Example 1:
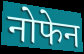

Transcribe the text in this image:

नोफेन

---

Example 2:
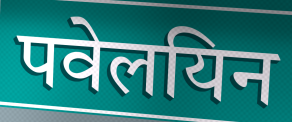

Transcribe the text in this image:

पवेलयिन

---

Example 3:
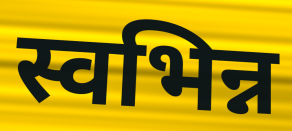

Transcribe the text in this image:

स्वभिन्न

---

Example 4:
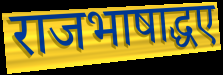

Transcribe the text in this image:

राजभाषाद्धए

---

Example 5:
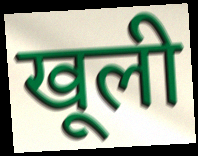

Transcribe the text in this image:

खूली